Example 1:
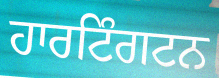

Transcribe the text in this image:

ਹਾਰਟਿੰਗਟਨ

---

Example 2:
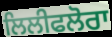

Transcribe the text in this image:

ਲਿਲੀਫਲੋਰਾ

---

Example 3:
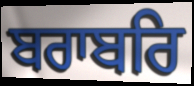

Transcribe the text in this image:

ਬਰਾਬਰਿ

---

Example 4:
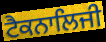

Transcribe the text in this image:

ਟੈਕਨਾਲਿਜੀ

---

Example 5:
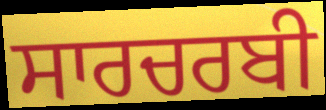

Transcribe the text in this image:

ਸਾਰਚਰਬੀ